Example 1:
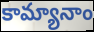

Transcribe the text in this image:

కామ్యానాం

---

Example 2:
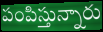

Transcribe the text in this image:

పంపిస్తున్నారు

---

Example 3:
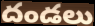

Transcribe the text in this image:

దండలు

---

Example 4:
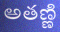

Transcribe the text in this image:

అతణ్ణి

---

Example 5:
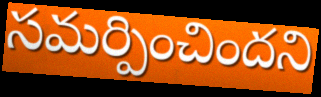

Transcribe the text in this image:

సమర్పించిందని